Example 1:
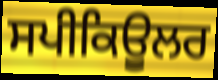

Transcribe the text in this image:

ਸਪੀਕਿਊਲਰ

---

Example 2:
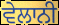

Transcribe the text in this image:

ਵੇਲਾਨੀ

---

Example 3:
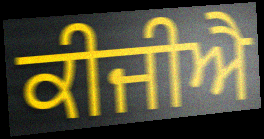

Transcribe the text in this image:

ਕੀਜੀਐ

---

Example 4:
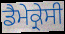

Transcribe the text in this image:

ਡੈਮੇਕ੍ਰੇਸੀ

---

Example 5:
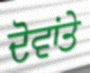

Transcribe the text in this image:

ਦੋਵਾਂਤੇ